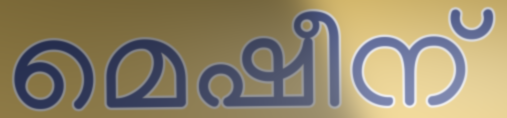
മെഷീന്